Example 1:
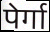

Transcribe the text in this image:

पेर्गा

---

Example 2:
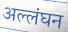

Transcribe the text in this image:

अल्लंघन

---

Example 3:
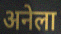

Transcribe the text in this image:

अनेला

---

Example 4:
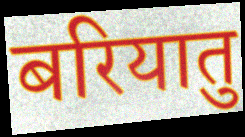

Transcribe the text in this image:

बरियातु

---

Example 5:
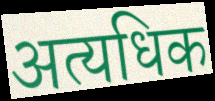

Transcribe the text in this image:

अत्‍यधिक